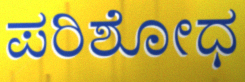
ಪರಿಶೋಧ